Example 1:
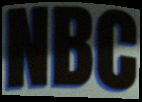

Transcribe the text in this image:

NBC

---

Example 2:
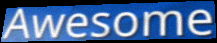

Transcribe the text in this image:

Awesome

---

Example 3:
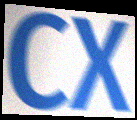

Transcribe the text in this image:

CX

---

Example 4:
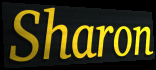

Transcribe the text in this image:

Sharon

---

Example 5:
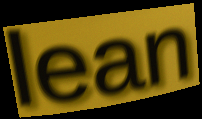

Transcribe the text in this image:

lean